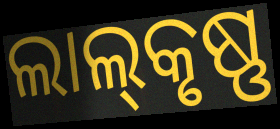
ଲାଲ୍‌କୃଷ୍ଣ